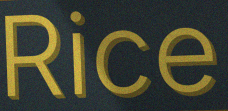
Rice